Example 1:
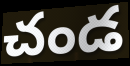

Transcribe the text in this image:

చండ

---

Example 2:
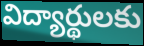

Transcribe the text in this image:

విద్యార్థులకు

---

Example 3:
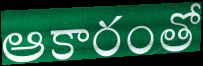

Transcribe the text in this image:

ఆకారంతో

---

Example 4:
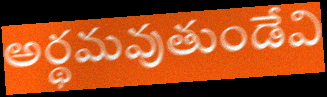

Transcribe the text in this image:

అర్థమవుతుండేవి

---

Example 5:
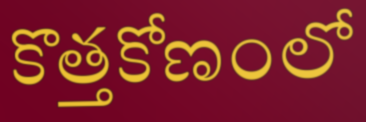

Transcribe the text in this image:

కొత్తకోణంలో